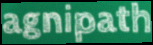
agnipath